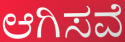
ಆಗಿಸವೆ